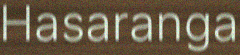
Hasaranga